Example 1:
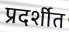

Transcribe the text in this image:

प्रदर्शीत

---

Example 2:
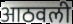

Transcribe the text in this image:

आठवली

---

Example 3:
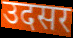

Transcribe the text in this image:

उदसर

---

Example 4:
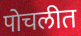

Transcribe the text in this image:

पोचलीत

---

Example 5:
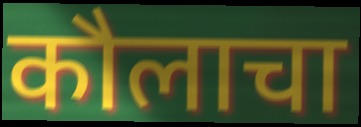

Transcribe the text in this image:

कौलाचा